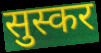
सुस्कर